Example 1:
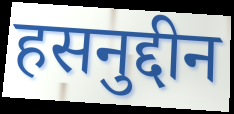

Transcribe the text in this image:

हसनुद्दीन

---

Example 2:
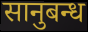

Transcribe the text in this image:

सानुबन्ध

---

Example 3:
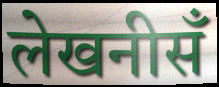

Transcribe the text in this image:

लेखनीसँ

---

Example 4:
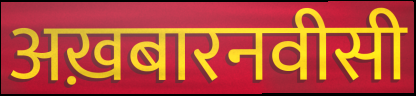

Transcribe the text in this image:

अख़बारनवीसी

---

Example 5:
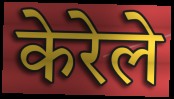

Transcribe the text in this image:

केरेले